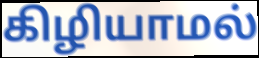
கிழியாமல்